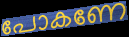
പോകണേ